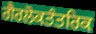
ਗੈਰਲੋਕਤੰਤਰਿਕ